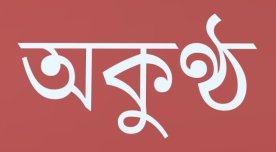
অকুণ্ঠ